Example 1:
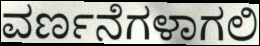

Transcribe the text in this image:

ವರ್ಣನೆಗಳಾಗಲಿ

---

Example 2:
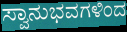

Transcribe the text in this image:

ಸ್ವಾನುಭವಗಳಿಂದ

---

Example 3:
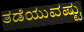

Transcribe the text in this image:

ತಡೆಯುವಷ್ಟು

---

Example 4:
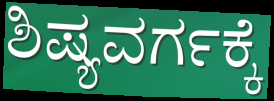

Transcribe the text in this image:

ಶಿಷ್ಯವರ್ಗಕ್ಕೆ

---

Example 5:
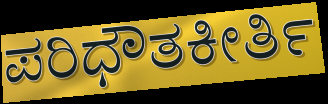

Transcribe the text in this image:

ಪರಿಧೌತಕೀರ್ತಿ